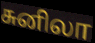
சுனிலா